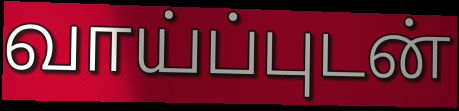
வாய்ப்புடன்